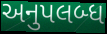
અનુપલબ્ધ